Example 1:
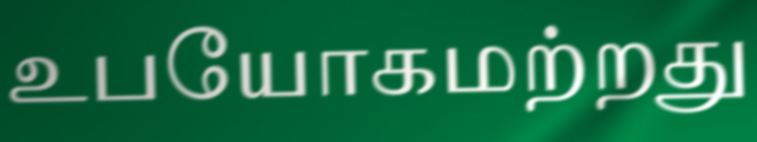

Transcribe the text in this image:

உபயோகமற்றது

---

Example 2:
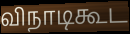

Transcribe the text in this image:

விநாடிகூட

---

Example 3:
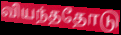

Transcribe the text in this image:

வியந்ததோடு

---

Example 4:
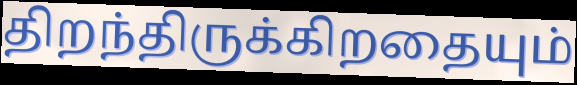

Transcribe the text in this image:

திறந்திருக்கிறதையும்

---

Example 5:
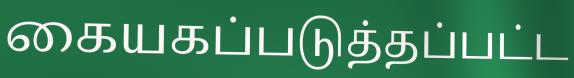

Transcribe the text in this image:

கையகப்படுத்தப்பட்ட